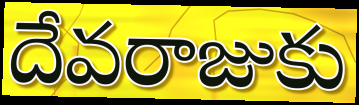
దేవరాజుకు